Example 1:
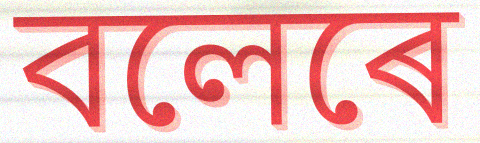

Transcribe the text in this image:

বলেৰে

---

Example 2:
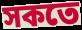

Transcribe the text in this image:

সকতে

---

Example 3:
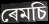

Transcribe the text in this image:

ৰেমচি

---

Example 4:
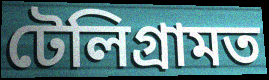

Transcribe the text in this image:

টেলিগ্ৰামত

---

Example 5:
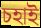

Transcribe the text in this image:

চহাই